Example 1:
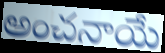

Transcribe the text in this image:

అంచనాయే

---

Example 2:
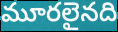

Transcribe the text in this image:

మూరలైనది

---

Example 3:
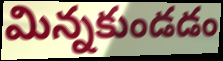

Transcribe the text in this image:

మిన్నకుండడం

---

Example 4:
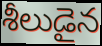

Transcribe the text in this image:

శీలుడైన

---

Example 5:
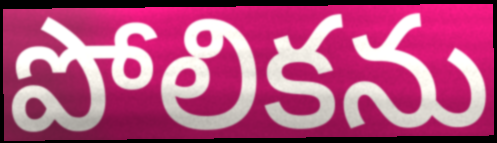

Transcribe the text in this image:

పోలికను